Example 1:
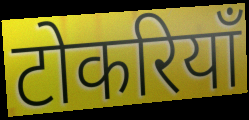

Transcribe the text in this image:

टोकरियाँ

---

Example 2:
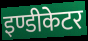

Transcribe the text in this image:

इण्डीकेटर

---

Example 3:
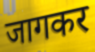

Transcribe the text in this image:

जागकर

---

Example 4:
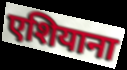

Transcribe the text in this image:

एशियाना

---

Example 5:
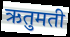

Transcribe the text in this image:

ऋतुमती